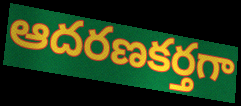
ఆదరణకర్తగా